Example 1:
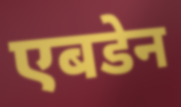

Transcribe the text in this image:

एबडेन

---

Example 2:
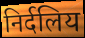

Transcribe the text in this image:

निर्दलिय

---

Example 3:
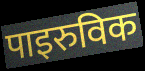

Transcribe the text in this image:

पाइरुविक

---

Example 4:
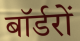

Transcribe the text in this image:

बॉर्डरों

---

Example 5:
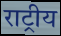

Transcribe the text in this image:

राट्रीय